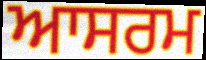
ਆਸਰਮ